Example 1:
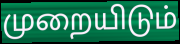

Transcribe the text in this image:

முறையிடும்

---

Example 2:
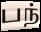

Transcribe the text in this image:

பந்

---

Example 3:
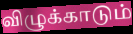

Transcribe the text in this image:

விழுக்காடும்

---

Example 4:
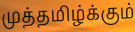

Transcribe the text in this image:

முத்தமிழ்க்கும்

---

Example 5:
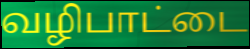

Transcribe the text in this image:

வழிபாட்டை